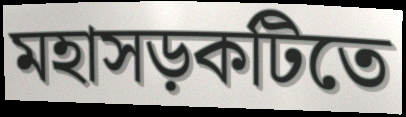
মহাসড়কটিতে